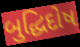
બુદ્ધિદોષ